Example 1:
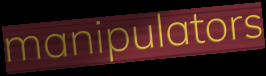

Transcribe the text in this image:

manipulators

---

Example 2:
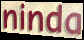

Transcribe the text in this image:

ninda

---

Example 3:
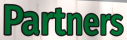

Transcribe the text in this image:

Partners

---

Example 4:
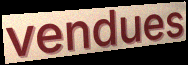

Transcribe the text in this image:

vendues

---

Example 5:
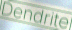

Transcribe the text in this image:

Dendrite